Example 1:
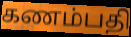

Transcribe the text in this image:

கணம்பதி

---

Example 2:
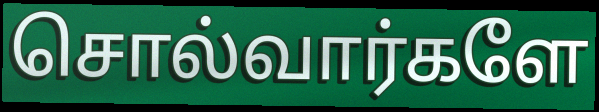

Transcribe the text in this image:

சொல்வார்களே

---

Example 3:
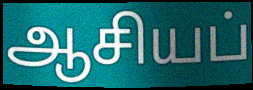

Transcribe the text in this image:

ஆசியப்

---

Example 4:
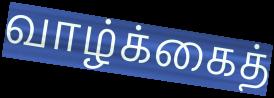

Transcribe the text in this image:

வாழ்க்கைத்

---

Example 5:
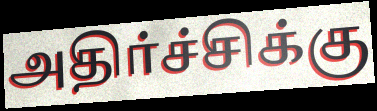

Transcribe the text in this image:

அதிர்ச்சிக்கு